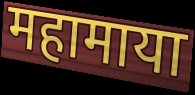
महामाया